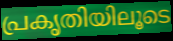
പ്രകൃതിയിലൂടെ